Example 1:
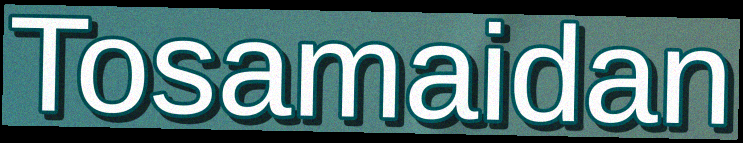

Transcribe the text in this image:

Tosamaidan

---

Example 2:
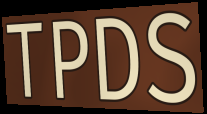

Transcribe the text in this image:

TPDS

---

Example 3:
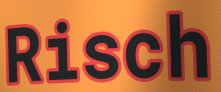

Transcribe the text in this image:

Risch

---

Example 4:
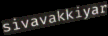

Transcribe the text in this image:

sivavakkiyar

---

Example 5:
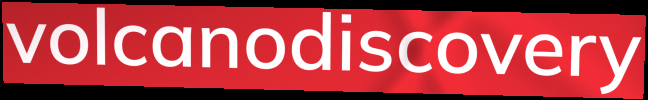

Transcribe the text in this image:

volcanodiscovery